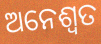
ଅନେଶ୍ଵତ